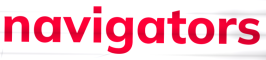
navigators